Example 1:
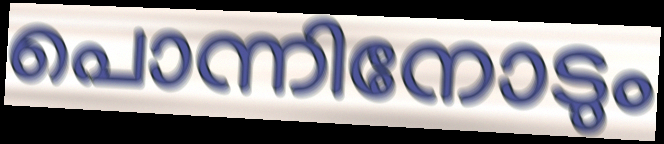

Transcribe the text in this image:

പൊന്നിനോടും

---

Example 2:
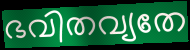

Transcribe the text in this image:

ഭവിതവ്യതേ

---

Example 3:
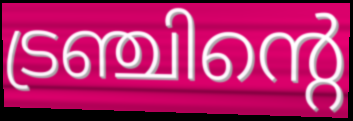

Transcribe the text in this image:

ട്രഞ്ചിന്റെ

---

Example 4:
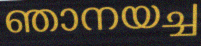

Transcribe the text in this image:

ഞാനയച്ച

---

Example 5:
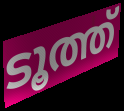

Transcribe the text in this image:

ടൂത്ത്